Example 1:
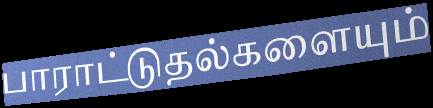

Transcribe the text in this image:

பாராட்டுதல்களையும்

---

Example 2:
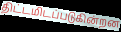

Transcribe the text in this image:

திட்டமிடப்படுகின்றன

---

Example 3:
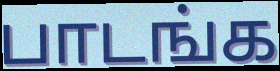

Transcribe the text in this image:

பாடங்க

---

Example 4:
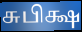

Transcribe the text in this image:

சுபிக்ஷ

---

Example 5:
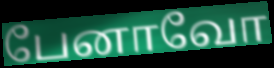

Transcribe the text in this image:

பேனாவோ